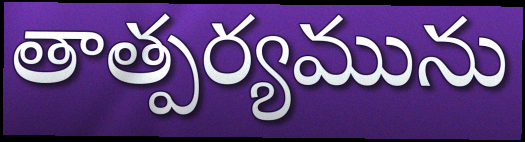
తాత్పర్యమును